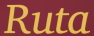
Ruta